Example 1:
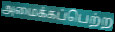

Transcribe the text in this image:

அமைக்கப்பெற்ற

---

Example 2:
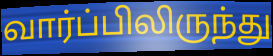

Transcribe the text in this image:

வார்ப்பிலிருந்து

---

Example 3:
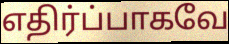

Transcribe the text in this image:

எதிர்ப்பாகவே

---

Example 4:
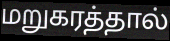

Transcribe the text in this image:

மறுகரத்தால்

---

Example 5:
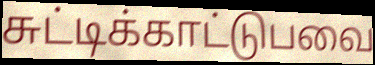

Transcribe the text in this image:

சுட்டிக்காட்டுபவை